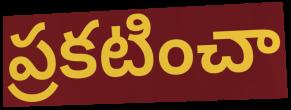
ప్రకటించా